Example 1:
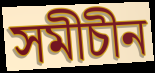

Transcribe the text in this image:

সমীচীন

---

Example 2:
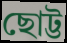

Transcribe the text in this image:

ছোট্ট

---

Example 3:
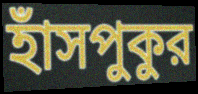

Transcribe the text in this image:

হাঁসপুকুর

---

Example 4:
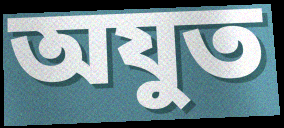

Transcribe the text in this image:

অযুত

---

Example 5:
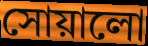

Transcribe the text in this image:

সোয়ালো